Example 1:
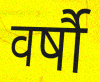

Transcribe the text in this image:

वर्षौ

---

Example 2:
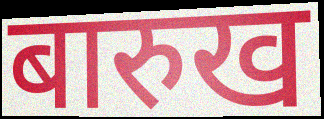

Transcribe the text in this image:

बारुख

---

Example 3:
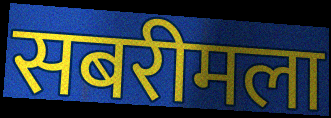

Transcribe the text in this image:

सबरीमला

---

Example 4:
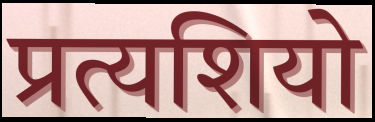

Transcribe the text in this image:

प्रत्यशियो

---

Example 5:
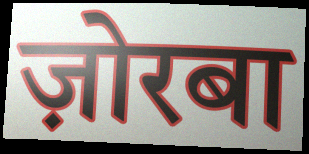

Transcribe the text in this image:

ज़ोरबा